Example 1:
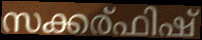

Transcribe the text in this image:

സക്കര്ഫിഷ്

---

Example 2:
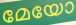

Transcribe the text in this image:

മേയോ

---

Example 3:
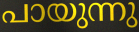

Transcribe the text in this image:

പായുന്നു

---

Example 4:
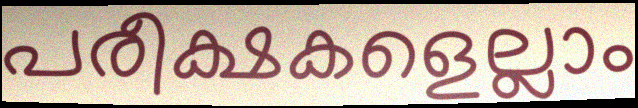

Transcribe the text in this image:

പരീക്ഷകളെല്ലാം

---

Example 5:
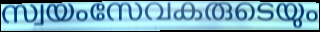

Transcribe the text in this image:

സ്വയംസേവകരുടെയും